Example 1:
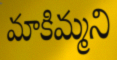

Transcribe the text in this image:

మాకిమ్మని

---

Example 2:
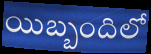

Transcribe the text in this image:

యిబ్బందిలో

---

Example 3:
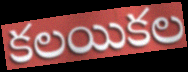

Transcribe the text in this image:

కలయికల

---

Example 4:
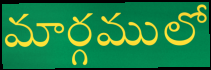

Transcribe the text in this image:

మార్గములో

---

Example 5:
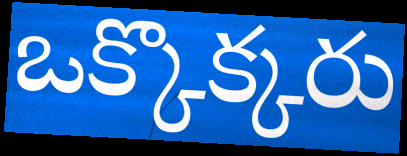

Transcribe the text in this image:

ఒక్కొక్కరు